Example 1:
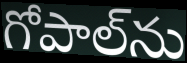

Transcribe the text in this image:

గోపాల్‌ను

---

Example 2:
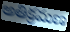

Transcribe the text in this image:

అతిక్రమణ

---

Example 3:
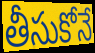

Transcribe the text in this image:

తీసుకోనే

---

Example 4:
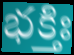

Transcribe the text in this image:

భక్తిః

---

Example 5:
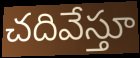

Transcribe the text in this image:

చదివేస్తూ